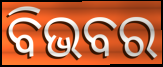
ବିଭବର